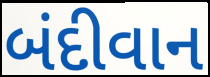
બંદીવાન